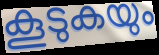
കൂടുകയും